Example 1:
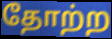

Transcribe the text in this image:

தோற்ற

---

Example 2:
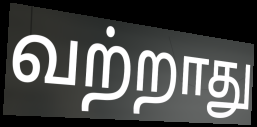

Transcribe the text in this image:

வற்றாது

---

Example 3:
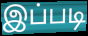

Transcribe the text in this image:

இப்படி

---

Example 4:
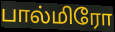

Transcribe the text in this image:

பால்மிரோ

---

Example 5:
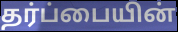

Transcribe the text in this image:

தர்ப்பையின்